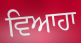
ਵਿਆਹਾ